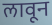
लावून